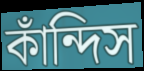
কাঁন্দিস